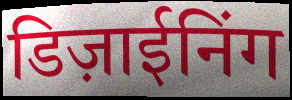
डिज़ाईनिंग